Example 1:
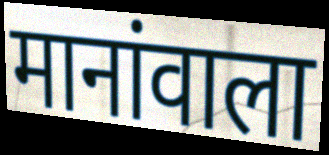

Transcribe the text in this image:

मानांवाला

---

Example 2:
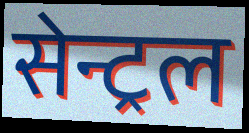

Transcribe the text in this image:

सेन्ट्रल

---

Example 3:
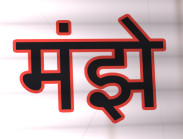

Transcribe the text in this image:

मंझे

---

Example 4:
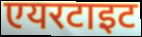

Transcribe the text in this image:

एयरटाइट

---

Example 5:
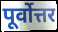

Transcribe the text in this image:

पूर्वोत्तर